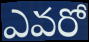
ఎవరో